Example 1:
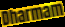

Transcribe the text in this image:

Dharmam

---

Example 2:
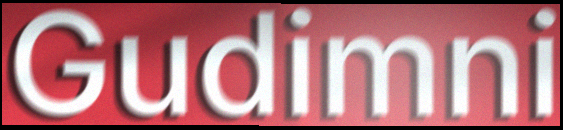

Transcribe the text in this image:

Gudimni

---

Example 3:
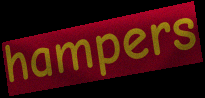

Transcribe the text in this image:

hampers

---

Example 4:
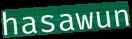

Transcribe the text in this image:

hasawun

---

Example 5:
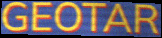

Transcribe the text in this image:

GEOTAR